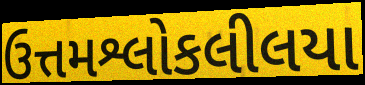
ઉત્તમશ્લોકલીલયા